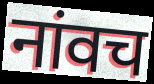
नांवच